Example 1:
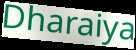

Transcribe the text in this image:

Dharaiya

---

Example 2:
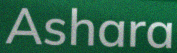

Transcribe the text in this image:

Ashara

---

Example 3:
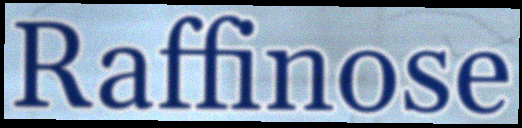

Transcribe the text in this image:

Raffinose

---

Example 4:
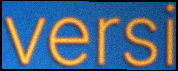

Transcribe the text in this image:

versi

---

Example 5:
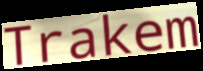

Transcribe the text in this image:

Trakem